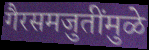
गैरसमजुतींमुळे